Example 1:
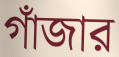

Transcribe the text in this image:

গাঁজার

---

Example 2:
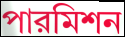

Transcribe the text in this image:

পারমিশন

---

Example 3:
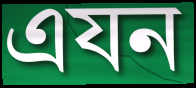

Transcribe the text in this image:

এযন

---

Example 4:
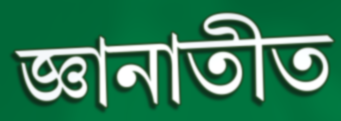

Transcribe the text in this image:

জ্ঞানাতীত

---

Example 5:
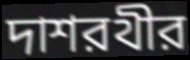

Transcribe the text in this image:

দাশরথীর